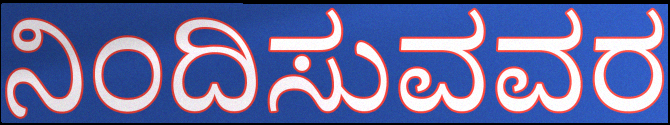
ನಿಂದಿಸುವವರ